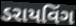
ડરાયવિંગ